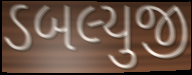
ડબલ્યુજી